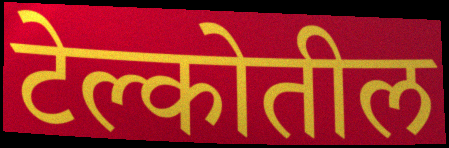
टेल्कोतील